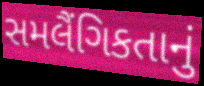
સમલૈંગિકતાનું